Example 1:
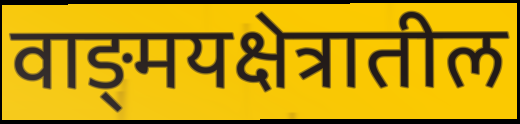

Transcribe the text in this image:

वाङ्मयक्षेत्रातील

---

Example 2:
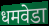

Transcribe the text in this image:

धमवेडा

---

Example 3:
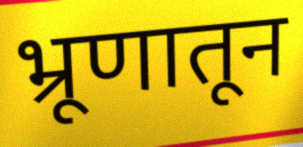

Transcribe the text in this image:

भ्रूणातून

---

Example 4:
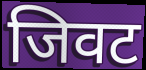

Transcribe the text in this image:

जिवट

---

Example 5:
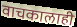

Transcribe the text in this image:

वाचकालाही